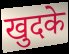
खुदके